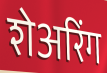
शेअरिंग